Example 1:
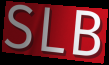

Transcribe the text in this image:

SLB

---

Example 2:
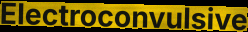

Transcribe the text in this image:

Electroconvulsive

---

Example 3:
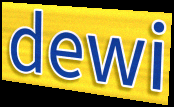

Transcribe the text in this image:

dewi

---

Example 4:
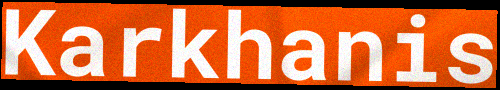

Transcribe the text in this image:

Karkhanis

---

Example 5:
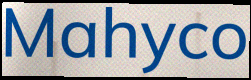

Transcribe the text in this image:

Mahyco